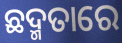
ଛଦ୍ମତାରେ